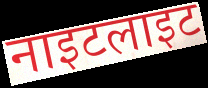
नाइटलाइट